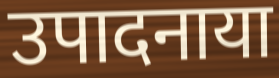
उपादनाया